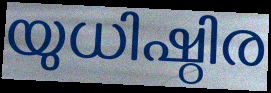
യുധിഷ്ഠിര